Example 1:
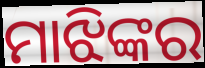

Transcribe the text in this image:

ମାଝିଙ୍କର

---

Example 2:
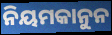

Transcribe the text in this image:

ନିୟମକାନୁନ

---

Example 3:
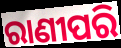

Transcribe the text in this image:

ରାଣୀପରି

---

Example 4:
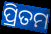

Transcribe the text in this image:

ପ୍ରିତମ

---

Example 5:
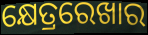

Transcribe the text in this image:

କ୍ଷେତ୍ରରେଖାର